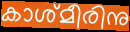
കാശ്മീരിനു